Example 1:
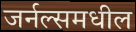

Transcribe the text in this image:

जर्नल्समधील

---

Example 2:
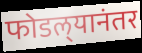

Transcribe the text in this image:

फोडल्यानंतर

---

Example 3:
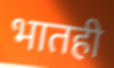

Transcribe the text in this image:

भातही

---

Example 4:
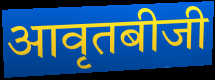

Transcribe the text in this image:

आवृतबीजी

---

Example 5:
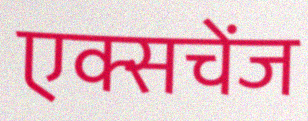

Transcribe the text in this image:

एक्सचेंज